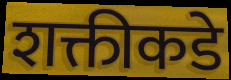
शक्तीकडे